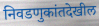
निवडणुकांतदेखील